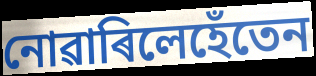
নোৱাৰিলেহেঁতেন